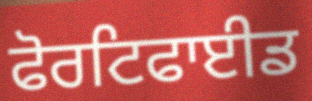
ਫੋਰਟਿਫਾਈਡ